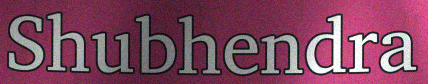
Shubhendra